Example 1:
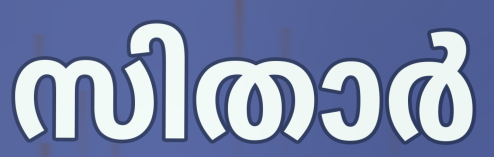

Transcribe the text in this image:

സിതാർ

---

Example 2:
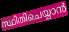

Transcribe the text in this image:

സ്ഥിതിചെയ്യാൻ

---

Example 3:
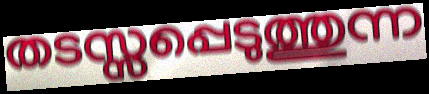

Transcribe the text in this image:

തടസ്സപ്പെടുത്തുന്ന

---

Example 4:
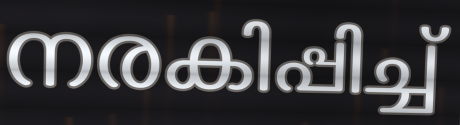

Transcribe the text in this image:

നരകിപ്പിച്ച്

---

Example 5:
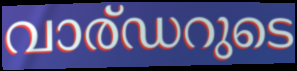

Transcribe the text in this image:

വാര്ഡറുടെ